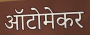
ऑटोमेकर